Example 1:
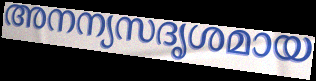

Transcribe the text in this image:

അനന്യസദൃശമായ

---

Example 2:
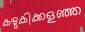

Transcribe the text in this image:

കഴുകിക്കളഞ്ഞ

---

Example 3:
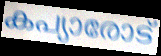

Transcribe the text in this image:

കപ്യാരോട്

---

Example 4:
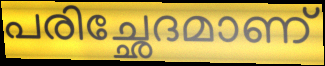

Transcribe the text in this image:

പരിച്ഛേദമാണ്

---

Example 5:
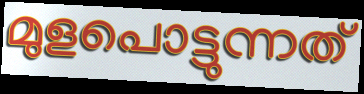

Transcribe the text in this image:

മുളപൊട്ടുന്നത്